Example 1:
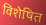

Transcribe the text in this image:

विशेषित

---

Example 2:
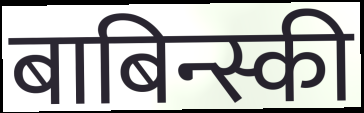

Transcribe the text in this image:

बाबिन्स्की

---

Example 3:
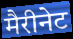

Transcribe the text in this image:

मैरीनेट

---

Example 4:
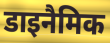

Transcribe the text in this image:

डाइनैमिक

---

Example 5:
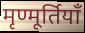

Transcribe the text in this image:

मृण्मूर्तियाँ